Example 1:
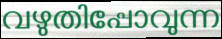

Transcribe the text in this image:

വഴുതിപ്പോവുന്ന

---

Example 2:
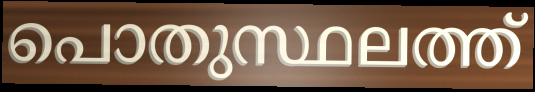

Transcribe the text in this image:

പൊതുസ്ഥലത്ത്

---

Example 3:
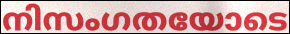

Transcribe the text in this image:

നിസംഗതയോടെ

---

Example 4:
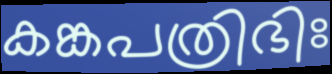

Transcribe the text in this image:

കങ്കപത്രിഭിഃ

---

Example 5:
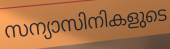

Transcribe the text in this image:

സന്യാസിനികളുടെ